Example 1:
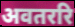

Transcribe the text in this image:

अवतररि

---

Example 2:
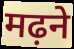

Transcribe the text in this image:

मढ़ने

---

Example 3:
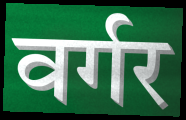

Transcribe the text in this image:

वर्गर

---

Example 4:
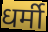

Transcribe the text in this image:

धर्मी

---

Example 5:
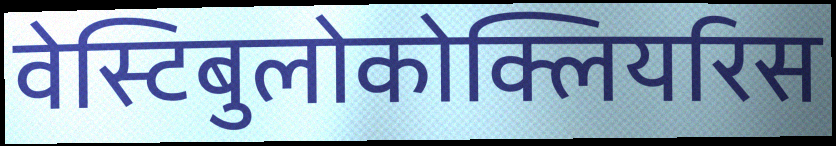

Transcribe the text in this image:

वेस्टिबुलोकोक्लियरिस